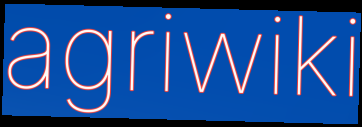
agriwiki